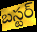
బస్టర్